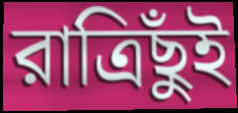
রাত্রিছুঁই